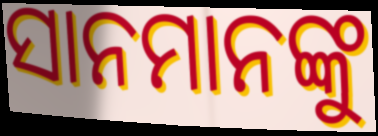
ସାନମାନଙ୍କୁ